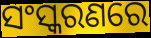
ସଂସ୍କରଣରେ